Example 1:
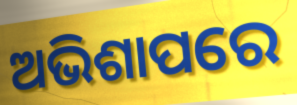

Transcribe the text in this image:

ଅଭିଶାପରେ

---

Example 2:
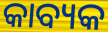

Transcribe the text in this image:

କାବ୍ୟକ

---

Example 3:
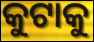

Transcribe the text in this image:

କୁଟାକୁ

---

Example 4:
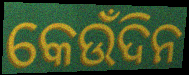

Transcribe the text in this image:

କେଉଁଦିନ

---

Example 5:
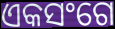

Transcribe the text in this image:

ଏକସଂଗେ